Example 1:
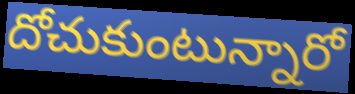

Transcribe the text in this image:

దోచుకుంటున్నారో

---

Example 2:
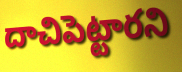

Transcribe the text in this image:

దాచిపెట్టారని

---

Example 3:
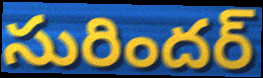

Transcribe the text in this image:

సురిందర్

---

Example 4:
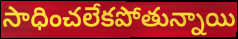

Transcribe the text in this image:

సాధించలేకపోతున్నాయి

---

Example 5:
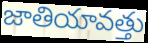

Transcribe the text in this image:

జాతియావత్తు